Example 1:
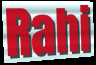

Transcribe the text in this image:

Rahi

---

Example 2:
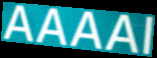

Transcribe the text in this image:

AAAAI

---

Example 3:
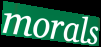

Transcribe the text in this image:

morals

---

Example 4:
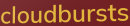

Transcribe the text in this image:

cloudbursts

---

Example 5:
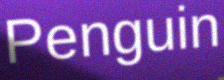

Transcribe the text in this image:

Penguin